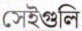
সেইগুলি